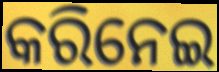
କରିନେଇ